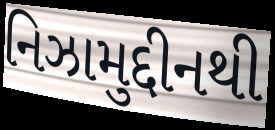
નિઝામુદ્દીનથી